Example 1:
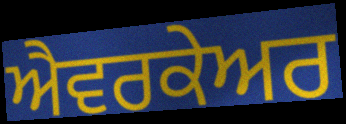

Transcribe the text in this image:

ਐਵਰਕੇਅਰ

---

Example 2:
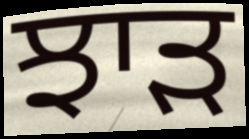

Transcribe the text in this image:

ਝਾੜ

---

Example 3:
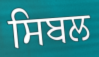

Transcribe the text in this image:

ਸਿਬਲ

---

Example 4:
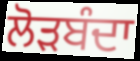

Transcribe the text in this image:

ਲੋੜਬੰਦਾ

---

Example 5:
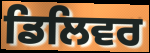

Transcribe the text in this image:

ਡਿਲਿਵਰ